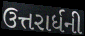
ઉત્તરાર્ધની